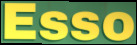
Esso